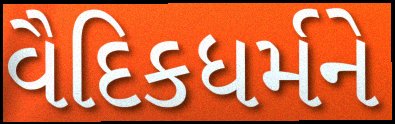
વૈદિકધર્મને